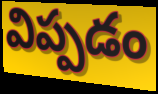
విప్పడం